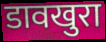
डावखुरा